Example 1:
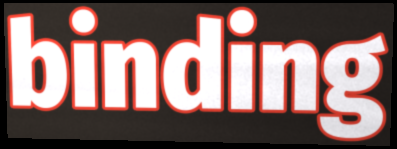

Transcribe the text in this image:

binding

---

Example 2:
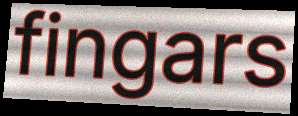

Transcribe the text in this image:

fingars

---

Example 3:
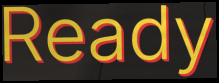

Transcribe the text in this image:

Ready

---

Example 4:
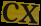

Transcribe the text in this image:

cx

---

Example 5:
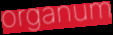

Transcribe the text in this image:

organum